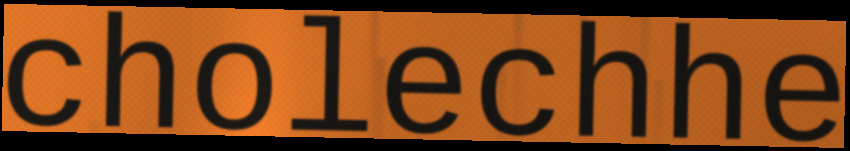
cholechhe